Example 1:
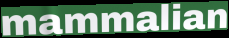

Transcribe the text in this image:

mammalian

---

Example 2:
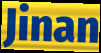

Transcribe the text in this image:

Jinan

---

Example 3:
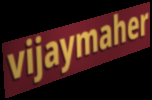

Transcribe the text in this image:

vijaymaher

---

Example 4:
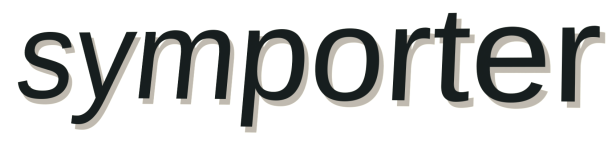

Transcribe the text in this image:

symporter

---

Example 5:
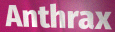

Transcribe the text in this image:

Anthrax